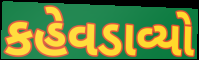
કહેવડાવ્યો